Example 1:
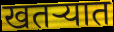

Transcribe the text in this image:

खतऱ्यात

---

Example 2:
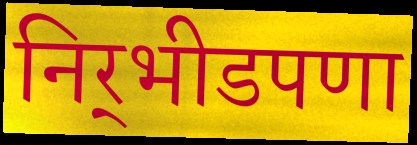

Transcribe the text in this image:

निर्भीडपणा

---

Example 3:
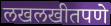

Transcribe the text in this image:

लखलखीतपणे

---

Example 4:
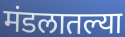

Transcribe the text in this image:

मंडलातल्या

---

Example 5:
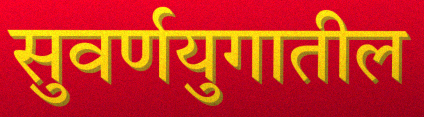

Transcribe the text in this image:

सुवर्णयुगातील